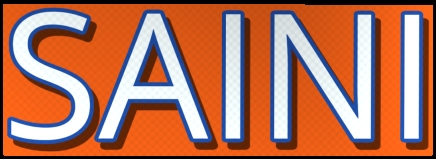
SAINI